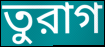
তুরাগ